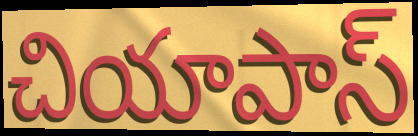
చియాపాస్